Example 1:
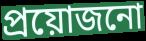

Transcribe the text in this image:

প্ৰয়োজনো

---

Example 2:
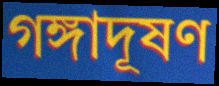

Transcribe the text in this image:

গঙ্গাদূষণ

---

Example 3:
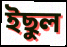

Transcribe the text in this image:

ইছুল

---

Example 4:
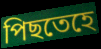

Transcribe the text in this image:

পিছতেহে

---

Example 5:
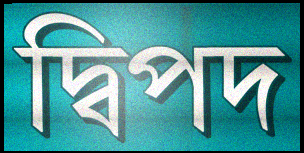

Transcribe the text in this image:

দ্বিপদ